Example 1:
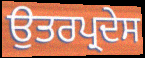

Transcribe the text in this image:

ਉਤਰਪ੍ਰਦੇਸ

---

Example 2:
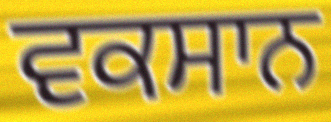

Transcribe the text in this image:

ਵਕਸਾਨ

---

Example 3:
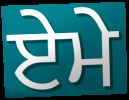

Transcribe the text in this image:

ਏਮੇ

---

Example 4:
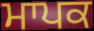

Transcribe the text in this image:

ਮਾਪਕ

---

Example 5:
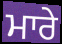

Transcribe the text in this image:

ਮਾਰੇ